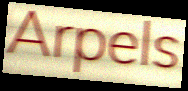
Arpels